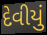
દેવીયું